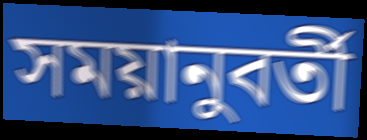
সময়ানুবর্তী